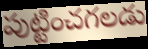
పుట్టించగలడు